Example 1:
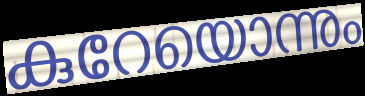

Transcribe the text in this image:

കുറേയൊന്നും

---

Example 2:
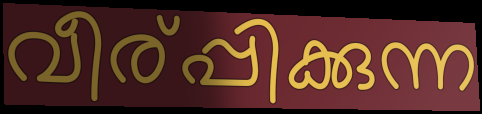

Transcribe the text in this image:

വീര്പ്പിക്കുന്ന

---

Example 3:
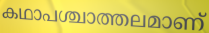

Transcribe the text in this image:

കഥാപശ്ചാത്തലമാണ്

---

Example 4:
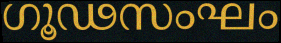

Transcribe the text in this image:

ഗൂഢസംഘം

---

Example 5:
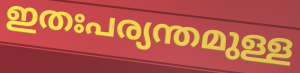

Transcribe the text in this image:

ഇതഃപര്യന്തമുള്ള